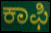
ಕಾಫಿ